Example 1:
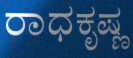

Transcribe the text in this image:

ರಾಧಕೃಷ್ಣ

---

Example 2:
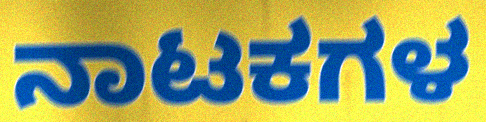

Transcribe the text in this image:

ನಾಟಕಗಳ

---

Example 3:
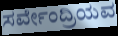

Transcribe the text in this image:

ಸರ್ವೇಂದ್ರಿಯವ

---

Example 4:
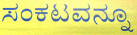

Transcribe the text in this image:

ಸಂಕಟವನ್ನೂ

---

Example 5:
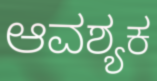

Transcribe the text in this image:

ಆವಶ್ಯಕ